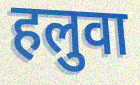
हलुवा